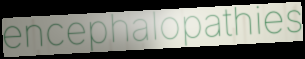
encephalopathies